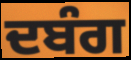
ਦਬੰਗ